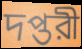
দপ্তরী